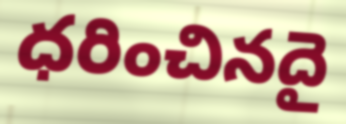
ధరించినదై